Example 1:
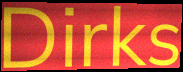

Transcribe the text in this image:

Dirks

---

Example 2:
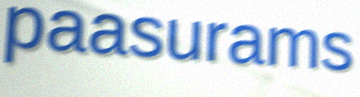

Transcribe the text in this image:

paasurams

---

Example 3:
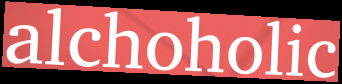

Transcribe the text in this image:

alchoholic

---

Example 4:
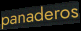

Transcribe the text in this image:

panaderos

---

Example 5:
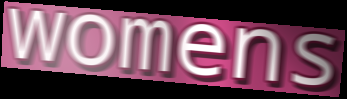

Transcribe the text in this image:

womens